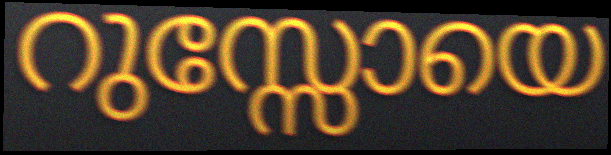
റുസ്സോയെ